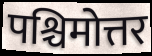
पश्चिमोत्तर